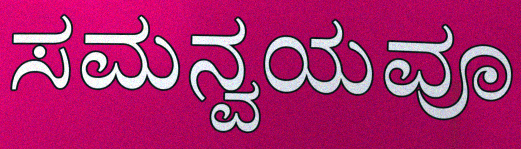
ಸಮನ್ವಯವೂ